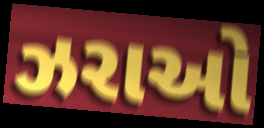
ઝરાઓ